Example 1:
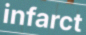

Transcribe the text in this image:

infarct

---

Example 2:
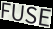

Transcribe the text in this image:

FUSE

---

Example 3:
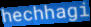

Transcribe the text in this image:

hechhagi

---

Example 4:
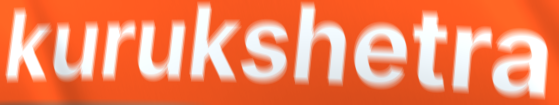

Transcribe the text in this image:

kurukshetra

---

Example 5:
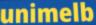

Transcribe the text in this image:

unimelb